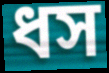
ধস